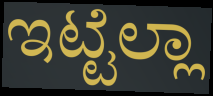
ಇಟ್ಟೆಲ್ಲಾ